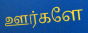
ஊர்களே